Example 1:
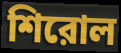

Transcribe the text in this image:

শিরোল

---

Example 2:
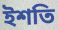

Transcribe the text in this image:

ইশতি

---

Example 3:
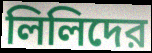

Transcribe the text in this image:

লিলিদের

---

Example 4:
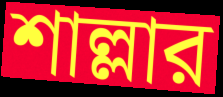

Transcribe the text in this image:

শাল্লার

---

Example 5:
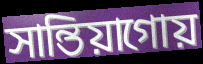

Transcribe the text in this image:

সান্তিয়াগোয়